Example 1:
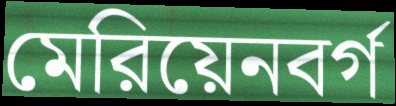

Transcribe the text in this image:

মেরিয়েনবর্গ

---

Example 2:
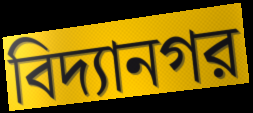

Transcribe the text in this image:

বিদ্যানগর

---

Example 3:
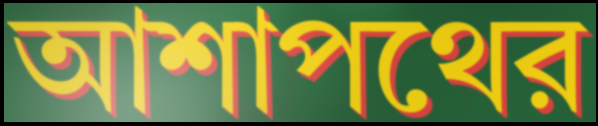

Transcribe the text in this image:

আশাপথের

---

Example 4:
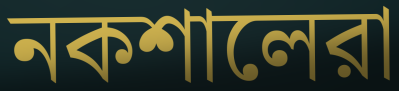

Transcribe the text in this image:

নকশালেরা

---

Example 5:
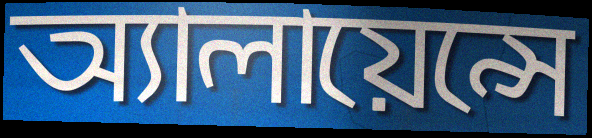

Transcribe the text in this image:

অ্যালায়েন্সে